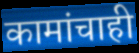
कामांचाही